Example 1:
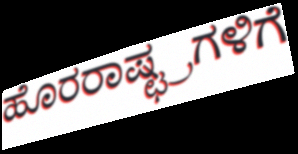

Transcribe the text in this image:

ಹೊರರಾಷ್ಟ್ರಗಳಿಗೆ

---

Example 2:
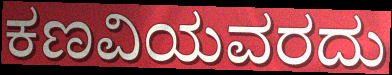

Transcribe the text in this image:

ಕಣವಿಯವರದು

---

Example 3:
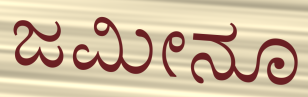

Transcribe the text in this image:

ಜಮೀನೂ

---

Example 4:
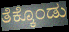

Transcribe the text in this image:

ತೆಕ್ಕೊಂಡು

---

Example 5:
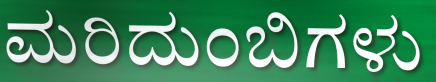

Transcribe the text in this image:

ಮರಿದುಂಬಿಗಳು